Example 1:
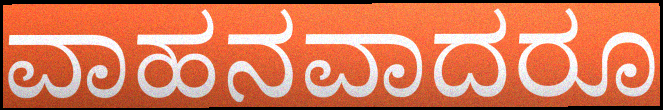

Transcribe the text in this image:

ವಾಹನವಾದರೂ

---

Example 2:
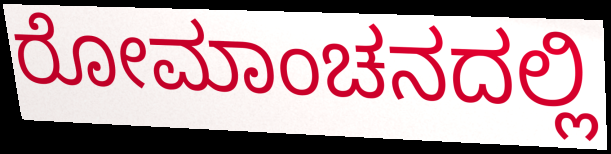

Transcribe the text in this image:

ರೋಮಾಂಚನದಲ್ಲಿ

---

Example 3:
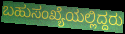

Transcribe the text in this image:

ಬಹುಸಂಖ್ಯೆಯಲ್ಲಿದ್ದರು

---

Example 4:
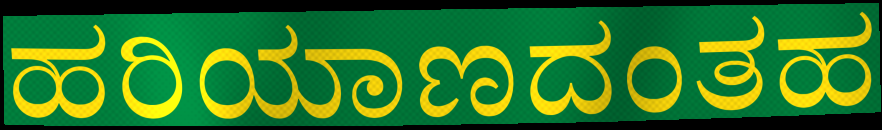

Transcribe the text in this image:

ಹರಿಯಾಣದಂತಹ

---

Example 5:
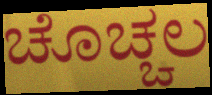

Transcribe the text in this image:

ಚೊಚ್ಚಲ